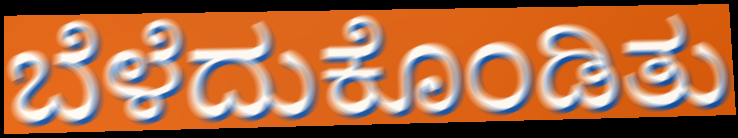
ಬೆಳೆದುಕೊಂಡಿತು